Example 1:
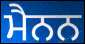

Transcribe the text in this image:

ਮੈਨਨ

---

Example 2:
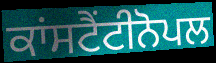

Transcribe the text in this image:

ਕਾਂਸਟੈਂਟੀਨੋਪਲ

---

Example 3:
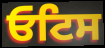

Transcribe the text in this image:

ਓਟਿਸ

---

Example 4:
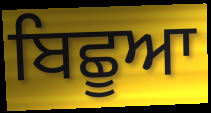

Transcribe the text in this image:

ਬਿਛੂਆ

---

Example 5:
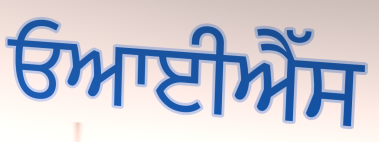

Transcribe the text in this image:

ਓਆਈਐੱਸ